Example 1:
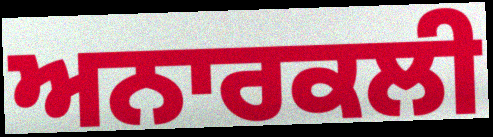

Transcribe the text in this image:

ਅਨਾਰਕਲੀ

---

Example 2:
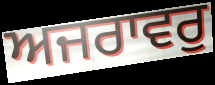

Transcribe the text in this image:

ਅਜਰਾਵਰੁ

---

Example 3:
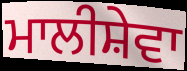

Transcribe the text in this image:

ਮਾਲੀਸ਼ੇਵਾ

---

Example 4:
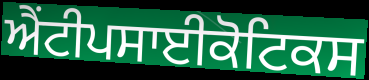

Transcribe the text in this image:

ਐਂਟੀਪਸਾਈਕੋਟਿਕਸ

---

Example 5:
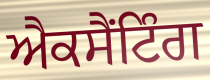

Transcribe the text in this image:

ਐਕਸੈਂਟਿੰਗ